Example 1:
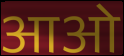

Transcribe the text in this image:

आओ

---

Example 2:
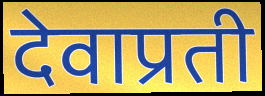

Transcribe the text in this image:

देवाप्रती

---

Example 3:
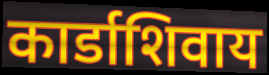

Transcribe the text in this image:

कार्डाशिवाय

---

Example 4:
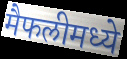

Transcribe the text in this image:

मैफलीमध्ये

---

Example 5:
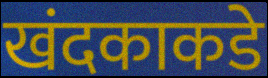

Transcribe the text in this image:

खंदकाकडे